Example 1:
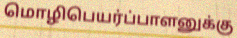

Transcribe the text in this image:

மொழிபெயர்ப்பாளனுக்கு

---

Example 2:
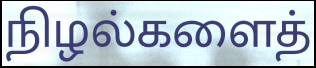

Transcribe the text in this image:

நிழல்களைத்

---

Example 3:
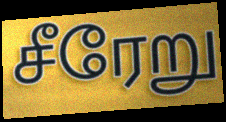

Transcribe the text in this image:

சீரேறு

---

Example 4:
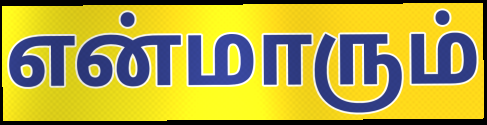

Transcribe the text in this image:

என்மாரும்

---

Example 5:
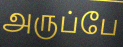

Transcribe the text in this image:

அருப்பே